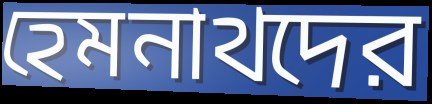
হেমনাথদের